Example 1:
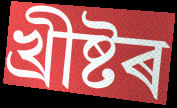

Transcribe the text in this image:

খ্ৰীষ্টৰ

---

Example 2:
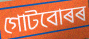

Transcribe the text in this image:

গোটবোৰৰ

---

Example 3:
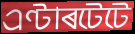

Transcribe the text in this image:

এণ্টাৰটেটে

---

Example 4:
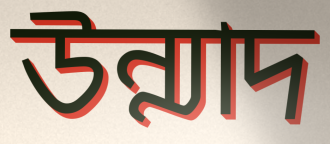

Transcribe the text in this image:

উন্মাদ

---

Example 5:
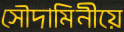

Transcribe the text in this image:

সৌদামিনীয়ে